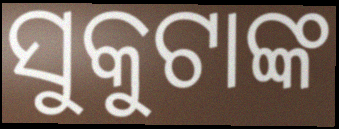
ସୁକୁଟାଙ୍କ